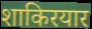
शाकिरयार